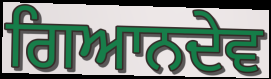
ਗਿਆਨਦੇਵ